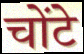
चोंटे